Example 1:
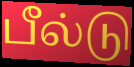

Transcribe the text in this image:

பீல்டு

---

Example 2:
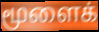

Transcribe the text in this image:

மூளைக்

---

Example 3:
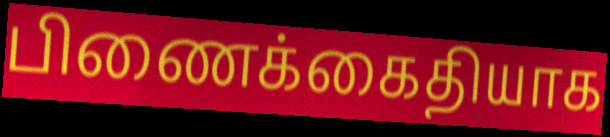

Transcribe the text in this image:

பிணைக்கைதியாக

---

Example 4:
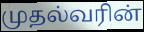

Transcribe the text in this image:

முதல்வரின்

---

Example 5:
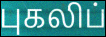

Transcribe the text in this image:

புகலிப்